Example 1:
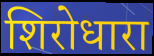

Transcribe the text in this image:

शिरोधारा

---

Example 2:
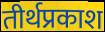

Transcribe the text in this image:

तीर्थप्रकाश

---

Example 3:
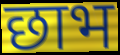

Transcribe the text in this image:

छाभ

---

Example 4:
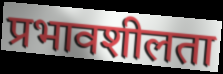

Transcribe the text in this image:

प्रभावशीलता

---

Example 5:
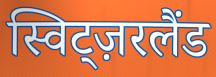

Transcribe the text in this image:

स्विट्ज़रलैंड